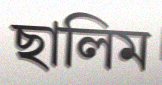
ছালিম